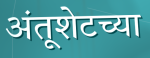
अंतूशेटच्या